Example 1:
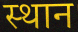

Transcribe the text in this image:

स्थान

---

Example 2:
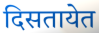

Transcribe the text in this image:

दिसतायेत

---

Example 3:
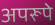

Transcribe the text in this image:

अपरूपे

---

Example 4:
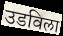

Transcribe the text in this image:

उडविला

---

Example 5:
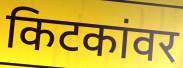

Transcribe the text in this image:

किटकांवर